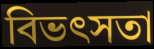
বিভৎসতা